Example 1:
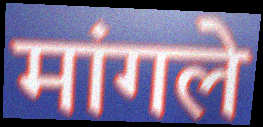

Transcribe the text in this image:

मांगले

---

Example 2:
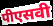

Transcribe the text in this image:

पीएसवी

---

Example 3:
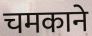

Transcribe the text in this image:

चमकाने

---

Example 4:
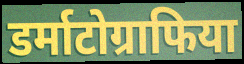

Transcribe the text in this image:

डर्माटोग्राफिया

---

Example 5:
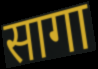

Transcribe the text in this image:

सागा